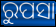
ରୁପସା